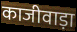
काजीवाड़ा